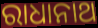
ରାଧାନାଥ